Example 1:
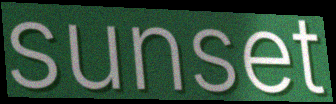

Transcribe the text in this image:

sunset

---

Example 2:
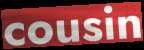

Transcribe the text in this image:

cousin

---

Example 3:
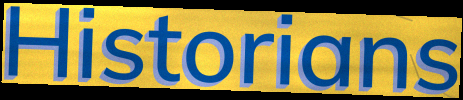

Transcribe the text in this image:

Historians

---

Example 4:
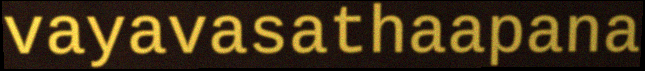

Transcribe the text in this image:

vayavasathaapana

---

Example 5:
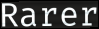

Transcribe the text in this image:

Rarer